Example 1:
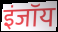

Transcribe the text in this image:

इंजॉय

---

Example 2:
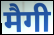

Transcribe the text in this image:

मैगी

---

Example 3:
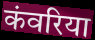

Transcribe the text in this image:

कंवरिया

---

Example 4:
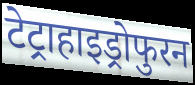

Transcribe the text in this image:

टेट्राहाइड्रोफुरन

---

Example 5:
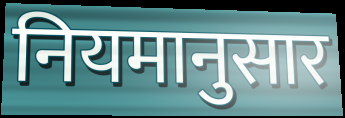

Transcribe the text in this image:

नियमानुसार